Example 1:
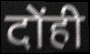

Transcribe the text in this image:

दोंही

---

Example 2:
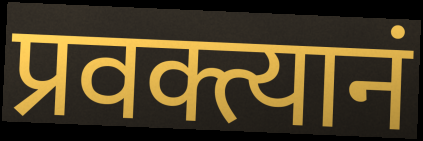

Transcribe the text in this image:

प्रवक्त्यानं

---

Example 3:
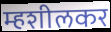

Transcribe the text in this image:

म्हशीलकर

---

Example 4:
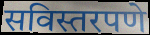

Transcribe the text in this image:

सविस्तरपणे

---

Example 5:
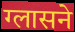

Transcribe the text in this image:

ग्लासने